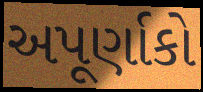
અપૂર્ણાકો